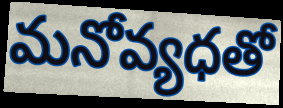
మనోవ్యధతో